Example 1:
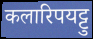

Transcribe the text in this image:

कलारिपयट्टु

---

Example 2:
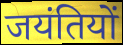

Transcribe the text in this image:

जयंतियों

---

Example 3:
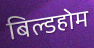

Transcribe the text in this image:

बिल्डहोम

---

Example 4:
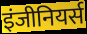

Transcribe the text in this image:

इंजीनियर्स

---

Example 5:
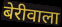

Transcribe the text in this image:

बेरीवाला